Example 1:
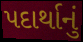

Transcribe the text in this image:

પદાર્થાનું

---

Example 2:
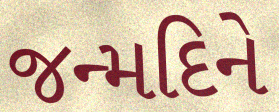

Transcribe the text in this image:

જન્મદિને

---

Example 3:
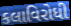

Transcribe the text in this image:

કલાવિરોધી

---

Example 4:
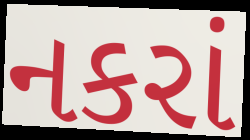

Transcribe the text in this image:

નકરાં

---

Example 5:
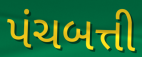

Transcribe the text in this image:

પંચબત્તી